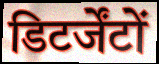
डिटर्जेंटों